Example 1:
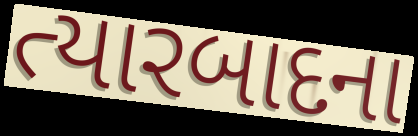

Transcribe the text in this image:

ત્યારબાદના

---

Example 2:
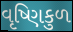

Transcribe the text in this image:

વૃષ્ણિકુળ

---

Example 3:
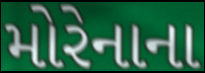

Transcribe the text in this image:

મોરેનાના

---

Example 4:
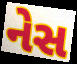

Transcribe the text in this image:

નેસ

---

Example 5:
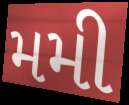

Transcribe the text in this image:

મમી